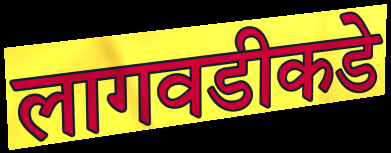
लागवडीकडे